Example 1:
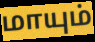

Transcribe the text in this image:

மாயும்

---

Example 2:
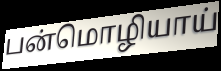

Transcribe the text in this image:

பன்மொழியாய்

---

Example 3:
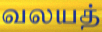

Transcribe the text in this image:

வலயத்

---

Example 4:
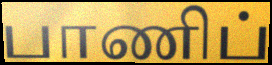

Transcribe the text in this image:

பாணிப்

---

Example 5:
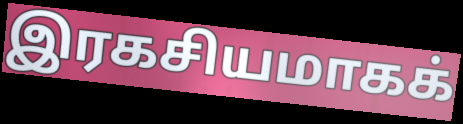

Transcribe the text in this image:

இரகசியமாகக்